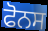
ਫੋਨਸ